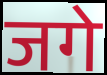
जगे